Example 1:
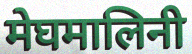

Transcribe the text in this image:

मेघमालिनी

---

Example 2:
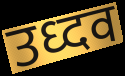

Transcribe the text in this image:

उध्दव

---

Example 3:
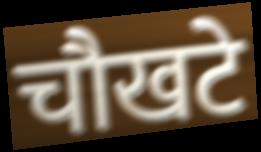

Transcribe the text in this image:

चौखटे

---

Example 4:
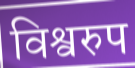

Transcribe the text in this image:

विश्वरुप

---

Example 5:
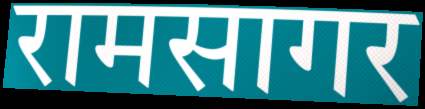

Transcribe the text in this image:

रामसागर